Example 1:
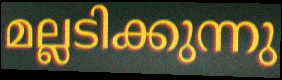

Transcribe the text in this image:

മല്ലടിക്കുന്നു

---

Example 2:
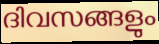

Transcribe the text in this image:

ദിവസങ്ങളും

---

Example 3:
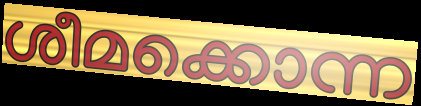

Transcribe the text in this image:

ശീമക്കൊന്ന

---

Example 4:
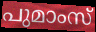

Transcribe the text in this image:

പുമാംസ്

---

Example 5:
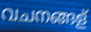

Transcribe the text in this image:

വചനങ്ങള്